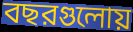
বছরগুলোয়